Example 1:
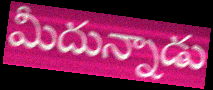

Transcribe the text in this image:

మీదున్నాడు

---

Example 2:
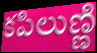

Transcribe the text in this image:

కపిలుణ్ణి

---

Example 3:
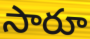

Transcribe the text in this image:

సారూ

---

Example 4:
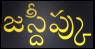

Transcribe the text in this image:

జస్దీప్కు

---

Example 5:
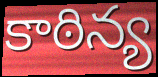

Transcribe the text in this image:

కాఠిన్య